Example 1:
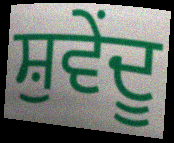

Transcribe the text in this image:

ਸ਼ੁਵੇਂਦੂ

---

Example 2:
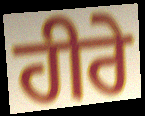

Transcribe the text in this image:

ਹੀਰੇ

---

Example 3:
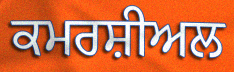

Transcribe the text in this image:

ਕਮਰਸ਼ੀਅਲ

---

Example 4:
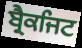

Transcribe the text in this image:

ਬ੍ਰੈਕਜਿਟ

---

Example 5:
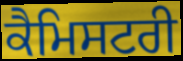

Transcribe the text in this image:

ਕੈਮਿਸਟਰੀ